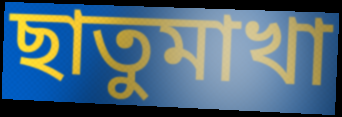
ছাতুমাখা